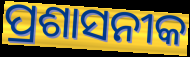
ପ୍ରଶାସନୀକ